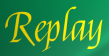
Replay